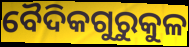
ବୈଦିକଗୁରୁକୁଳ